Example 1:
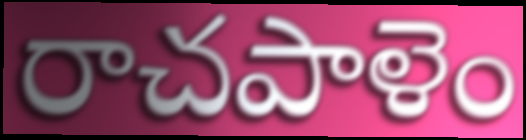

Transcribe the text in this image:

రాచపాళెం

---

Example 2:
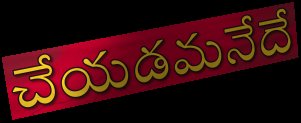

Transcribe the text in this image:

చేయడమనేదే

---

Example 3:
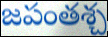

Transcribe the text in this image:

జపంతశ్చ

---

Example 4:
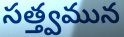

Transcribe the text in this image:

సత్త్వమున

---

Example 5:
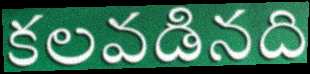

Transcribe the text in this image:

కలవడినది